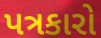
પત્રકારો